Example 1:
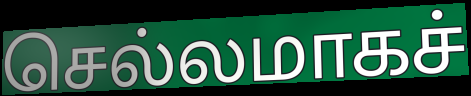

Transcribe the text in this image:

செல்லமாகச்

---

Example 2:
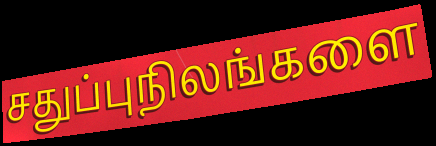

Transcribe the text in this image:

சதுப்புநிலங்களை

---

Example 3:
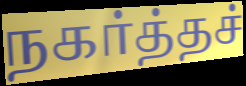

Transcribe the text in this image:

நகர்த்தச்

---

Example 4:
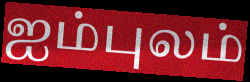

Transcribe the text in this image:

ஐம்புலம்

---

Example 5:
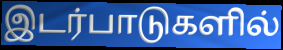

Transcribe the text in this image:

இடர்பாடுகளில்